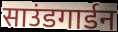
साउंडगार्डन